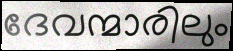
ദേവന്മാരിലും